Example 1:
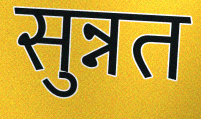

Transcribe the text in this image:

सुन्नत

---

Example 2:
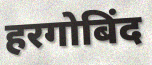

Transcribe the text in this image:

हरगोबिंद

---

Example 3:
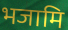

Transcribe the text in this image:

भजामि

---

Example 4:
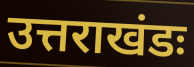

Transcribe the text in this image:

उत्तराखंडः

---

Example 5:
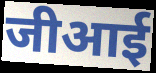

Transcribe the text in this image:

जीआई